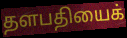
தளபதியைக்